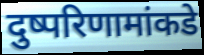
दुष्परिणामांकडे